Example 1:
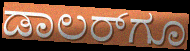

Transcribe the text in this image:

ಡಾಲರ್‌ಗೂ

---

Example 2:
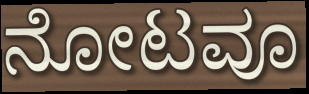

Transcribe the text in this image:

ನೋಟವೂ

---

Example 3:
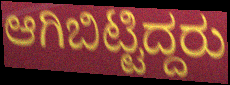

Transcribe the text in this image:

ಆಗಿಬಿಟ್ಟಿದ್ದರು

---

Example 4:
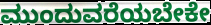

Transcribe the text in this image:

ಮುಂದುವರೆಯಬೇಕೇ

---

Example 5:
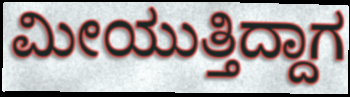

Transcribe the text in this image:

ಮೀಯುತ್ತಿದ್ದಾಗ